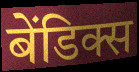
बेंडिक्स